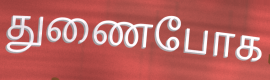
துணைபோக